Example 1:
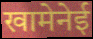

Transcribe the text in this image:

खामेनेई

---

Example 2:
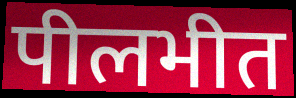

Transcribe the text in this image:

पीलभीत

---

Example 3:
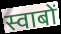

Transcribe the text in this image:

स्वाबों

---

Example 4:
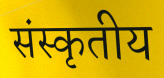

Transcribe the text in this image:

संस्कृतीय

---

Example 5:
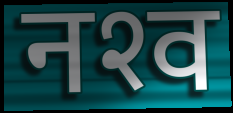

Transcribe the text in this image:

नश्व